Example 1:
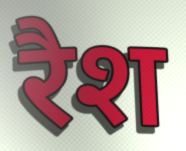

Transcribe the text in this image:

रैश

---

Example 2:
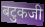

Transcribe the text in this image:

बटुकजी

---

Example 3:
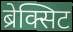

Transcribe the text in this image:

ब्रेक्सिट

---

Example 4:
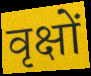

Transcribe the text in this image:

वृक्षों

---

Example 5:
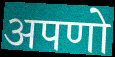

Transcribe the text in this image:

अपणो